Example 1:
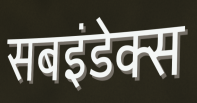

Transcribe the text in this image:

सबइंडेक्स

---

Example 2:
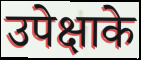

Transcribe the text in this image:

उपेक्षाके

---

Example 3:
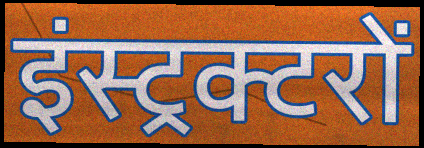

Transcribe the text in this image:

इंस्ट्रक्टरों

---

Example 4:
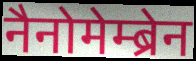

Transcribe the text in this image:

नैनोमेम्ब्रेन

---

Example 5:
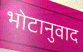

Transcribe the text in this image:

भोटानुवाद